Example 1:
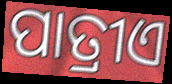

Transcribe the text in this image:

ପାତ୍ରୀଏ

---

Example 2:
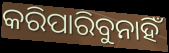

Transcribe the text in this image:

କରିପାରିବୁନାହିଁ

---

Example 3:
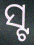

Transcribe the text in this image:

ସ୍ଟ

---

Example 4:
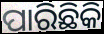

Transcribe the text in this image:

ପାରିଛିକି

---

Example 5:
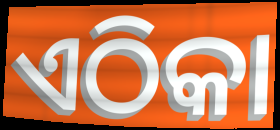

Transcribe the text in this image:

ଏଠିକା